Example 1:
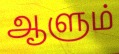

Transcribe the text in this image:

ஆளும்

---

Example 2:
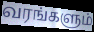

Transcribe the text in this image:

வரங்களும்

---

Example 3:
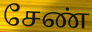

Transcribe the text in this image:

சேண்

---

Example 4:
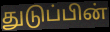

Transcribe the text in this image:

துடுப்பின்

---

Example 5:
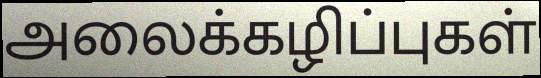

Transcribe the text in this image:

அலைக்கழிப்புகள்